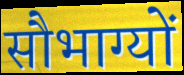
सौभाग्यों